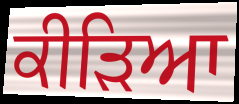
ਕੀੜਿਆ